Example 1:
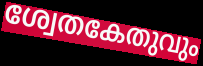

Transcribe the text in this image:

ശ്വേതകേതുവും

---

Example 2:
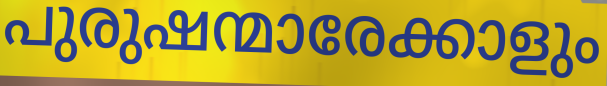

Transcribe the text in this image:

പുരുഷന്മാരേക്കാളും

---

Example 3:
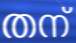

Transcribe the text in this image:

തന്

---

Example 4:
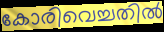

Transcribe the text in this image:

കോരിവെച്ചതിൽ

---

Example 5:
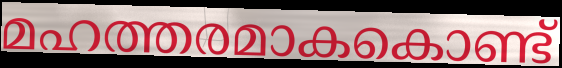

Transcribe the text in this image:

മഹത്തരമാകകൊണ്ട്